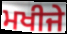
ਮਖੀਜੇ